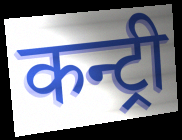
कन्ट्री